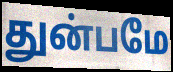
துன்பமே